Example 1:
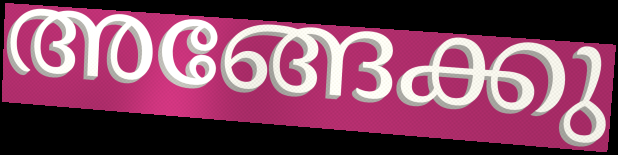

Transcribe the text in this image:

അങ്ങേക്കു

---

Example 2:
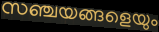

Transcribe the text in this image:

സഞ്ചയങ്ങളെയും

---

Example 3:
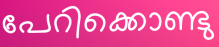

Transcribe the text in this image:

പേറിക്കൊണ്ടു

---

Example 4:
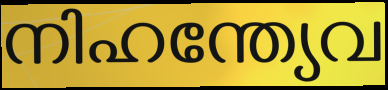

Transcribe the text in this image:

നിഹന്ത്യേവ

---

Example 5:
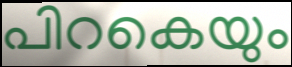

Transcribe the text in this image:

പിറകെയും